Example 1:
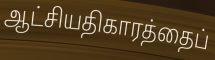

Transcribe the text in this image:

ஆட்சியதிகாரத்தைப்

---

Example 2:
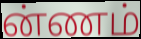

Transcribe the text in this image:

ன்ணம்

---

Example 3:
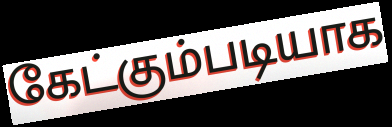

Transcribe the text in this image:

கேட்கும்படியாக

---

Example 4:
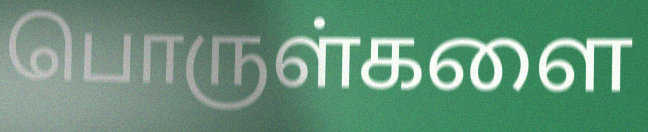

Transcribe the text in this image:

பொருள்களை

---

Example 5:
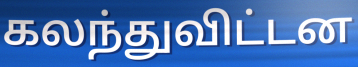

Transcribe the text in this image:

கலந்துவிட்டன